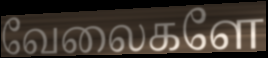
வேலைகளே